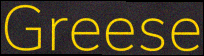
Greese